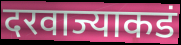
दरवाज्याकडं